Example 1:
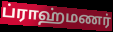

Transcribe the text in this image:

ப்ராஹ்மணர்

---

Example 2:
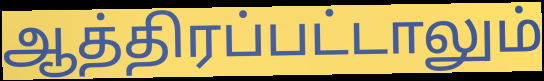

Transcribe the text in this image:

ஆத்திரப்பட்டாலும்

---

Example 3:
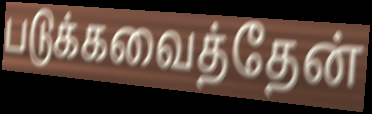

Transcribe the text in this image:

படுக்கவைத்தேன்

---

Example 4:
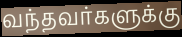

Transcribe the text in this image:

வந்தவர்களுக்கு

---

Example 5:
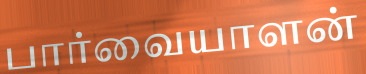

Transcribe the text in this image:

பார்வையாளன்